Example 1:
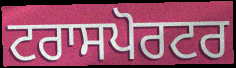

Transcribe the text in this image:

ਟਰਾਸਪੋਰਟਰ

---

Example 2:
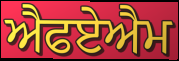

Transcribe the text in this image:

ਐਫਏਐਮ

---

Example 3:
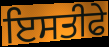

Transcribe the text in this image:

ਇਸਤੀਫੇ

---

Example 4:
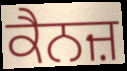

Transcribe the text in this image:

ਕੈਨਜ਼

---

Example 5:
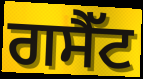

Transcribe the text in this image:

ਗਸੈੱਟ